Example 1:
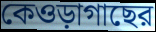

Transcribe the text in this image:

কেওড়াগাছের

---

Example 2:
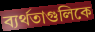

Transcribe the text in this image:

ব্যর্থতাগুলিকে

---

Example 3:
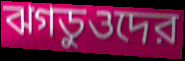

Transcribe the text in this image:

ঝগডুওদের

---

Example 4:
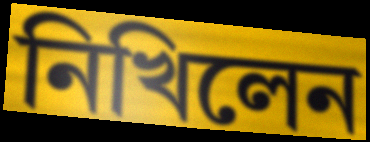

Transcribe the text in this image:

নিখিলেন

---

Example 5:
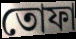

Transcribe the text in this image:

তোফা